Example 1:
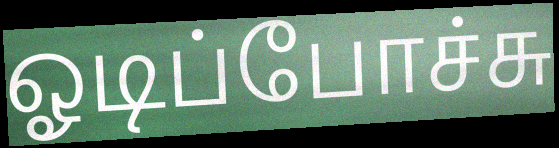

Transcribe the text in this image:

ஓடிப்போச்சு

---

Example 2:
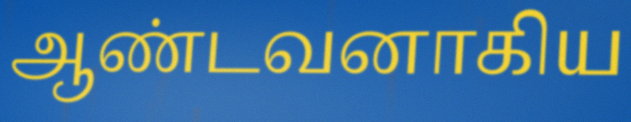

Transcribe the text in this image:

ஆண்டவனாகிய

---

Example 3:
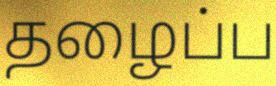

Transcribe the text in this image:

தழைப்ப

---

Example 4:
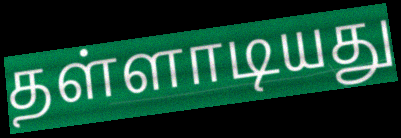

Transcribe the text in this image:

தள்ளாடியது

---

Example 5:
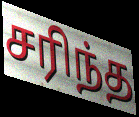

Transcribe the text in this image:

சரிந்த